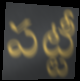
పట్టీ